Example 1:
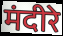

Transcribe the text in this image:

मंदीरे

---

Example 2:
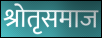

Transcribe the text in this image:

श्रोतृसमाज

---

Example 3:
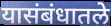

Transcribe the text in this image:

यासंबंधातले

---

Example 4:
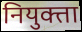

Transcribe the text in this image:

नियुक्ता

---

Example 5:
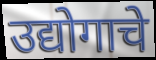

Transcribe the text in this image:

उद्योगाचे